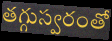
తగ్గుస్వరంతో